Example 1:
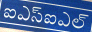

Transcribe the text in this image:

ఐఎస్ఐఎల్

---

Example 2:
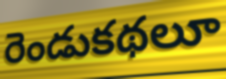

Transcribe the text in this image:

రెండుకథలూ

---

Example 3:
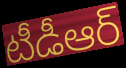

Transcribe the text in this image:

టీడీఆర్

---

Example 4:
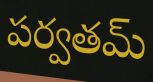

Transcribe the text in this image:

పర్వతమ్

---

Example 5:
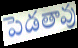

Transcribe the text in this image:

పెడతావు